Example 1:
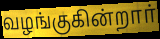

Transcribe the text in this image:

வழங்குகின்றார்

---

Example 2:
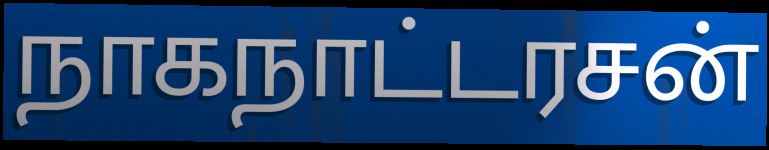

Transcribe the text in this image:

நாகநாட்டரசன்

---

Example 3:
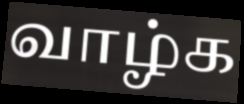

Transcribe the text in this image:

வாழ்க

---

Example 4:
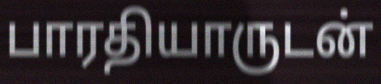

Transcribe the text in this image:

பாரதியாருடன்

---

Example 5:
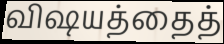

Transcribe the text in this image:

விஷயத்தைத்